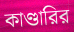
কাণ্ডারির